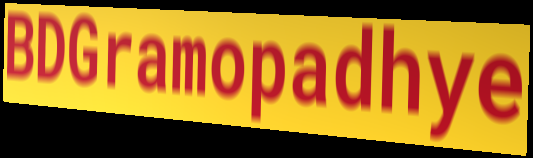
BDGramopadhye